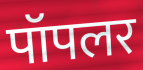
पॉपलर